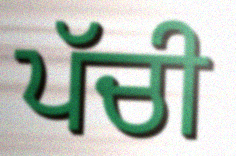
ਪੱਚੀ